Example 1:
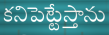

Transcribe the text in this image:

కనిపెట్టేస్తాను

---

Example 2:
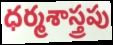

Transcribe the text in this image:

ధర్మశాస్త్రపు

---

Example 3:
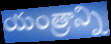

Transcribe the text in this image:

యంత్రాన్ని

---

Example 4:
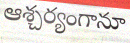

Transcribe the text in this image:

ఆశ్చర్యంగానూ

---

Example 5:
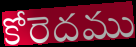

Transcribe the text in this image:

కోరెదము